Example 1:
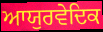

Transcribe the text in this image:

ਆਯੁਰਵੇਦਿਕ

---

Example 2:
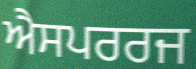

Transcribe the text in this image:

ਐਸਪਰਰਜ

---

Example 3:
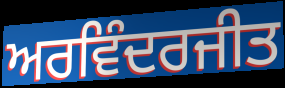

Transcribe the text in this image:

ਅਰਵਿੰਦਰਜੀਤ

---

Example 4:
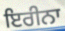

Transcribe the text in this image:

ਇਰੀਨਾ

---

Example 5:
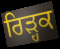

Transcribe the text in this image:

ਰਿੜ੍ਹਕ